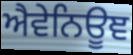
ਐਵੇਨਿਊਞ